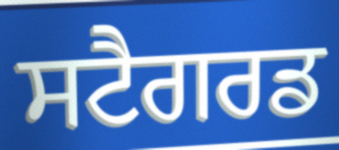
ਸਟੈਗਰਡ